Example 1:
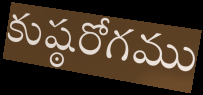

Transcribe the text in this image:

కుష్ఠరోగము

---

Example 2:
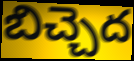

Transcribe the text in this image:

బిచ్చెద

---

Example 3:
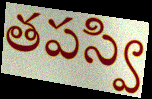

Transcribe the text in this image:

తపస్వి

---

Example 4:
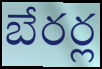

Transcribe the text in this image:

బేరర్ల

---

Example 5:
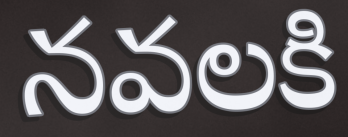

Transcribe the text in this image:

నవలకి